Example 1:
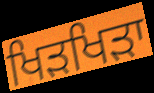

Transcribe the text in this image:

ਖਿੜਖਿੜਾ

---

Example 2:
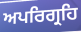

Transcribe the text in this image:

ਅਪਰਿਗ੍ਰਹਿ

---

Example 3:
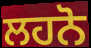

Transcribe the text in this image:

ਲਹਨੋ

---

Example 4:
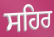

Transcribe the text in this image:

ਸਹਿਰ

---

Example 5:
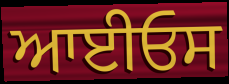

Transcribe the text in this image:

ਆਈਓਸ